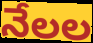
నేలల